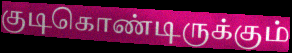
குடிகொண்டிருக்கும்